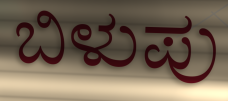
ಬಿಳುಪು